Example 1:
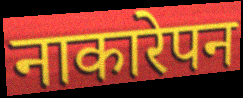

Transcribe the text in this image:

नाकारेपन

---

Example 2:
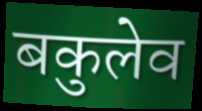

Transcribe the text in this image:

बकुलेव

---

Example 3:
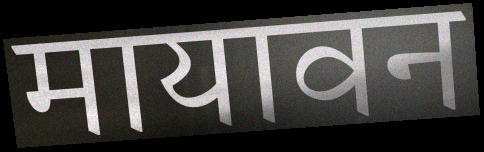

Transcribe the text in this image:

मायावन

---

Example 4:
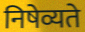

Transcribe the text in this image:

निषेव्यते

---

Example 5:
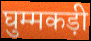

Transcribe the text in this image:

घुम्मकड़ी